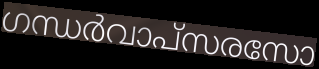
ഗന്ധർവാപ്സരസോ